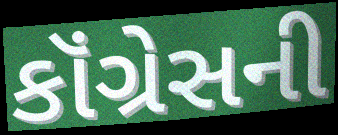
કૉંગ્રેસની